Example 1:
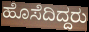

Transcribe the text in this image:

ಹೊಸೆದಿದ್ದರು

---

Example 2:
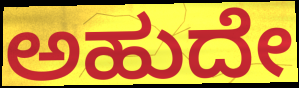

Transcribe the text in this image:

ಅಹುದೇ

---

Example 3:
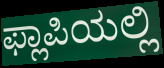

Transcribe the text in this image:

ಫ್ಲಾಪಿಯಲ್ಲಿ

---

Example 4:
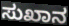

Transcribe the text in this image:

ಸುಖಾನ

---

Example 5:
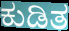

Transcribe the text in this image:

ಕುಡಿತ